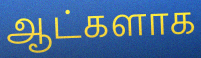
ஆட்களாக